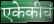
एकेकीचं